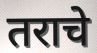
तराचे